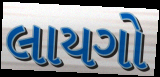
લાયગો